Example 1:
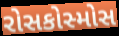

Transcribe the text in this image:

રોસકોસ્મોસ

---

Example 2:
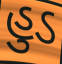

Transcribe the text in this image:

હુડ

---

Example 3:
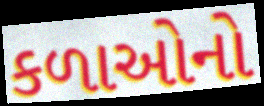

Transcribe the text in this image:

કળાઓનો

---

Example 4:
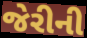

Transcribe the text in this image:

જેરીની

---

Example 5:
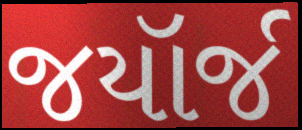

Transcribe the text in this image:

જયૉર્જ